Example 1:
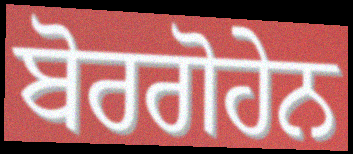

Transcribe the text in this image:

ਬੋਰਗੋਹੇਨ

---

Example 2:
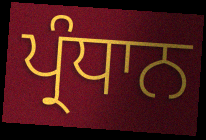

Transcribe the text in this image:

ਪ੍ਰੰਧਾਨ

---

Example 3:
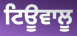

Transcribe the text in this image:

ਟਿਊਵਾਲੂ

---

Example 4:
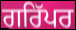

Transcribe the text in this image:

ਗਰਿੱਪਰ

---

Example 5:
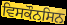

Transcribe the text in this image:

ਵਿਸਕੌਨਸਿਨ